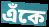
এঁকে